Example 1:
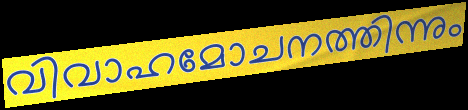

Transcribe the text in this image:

വിവാഹമോചനത്തിന്നും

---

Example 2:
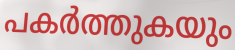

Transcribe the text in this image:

പകർത്തുകയും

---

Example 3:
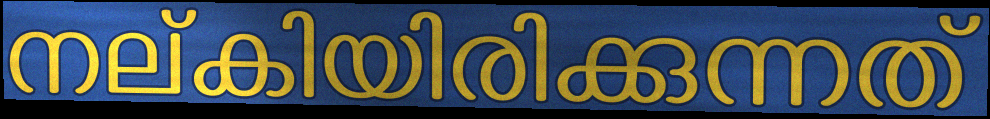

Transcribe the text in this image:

നല്‌കിയിരിക്കുന്നത്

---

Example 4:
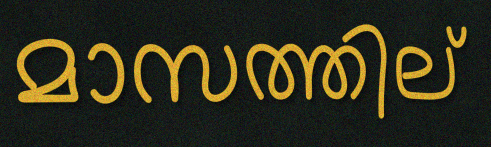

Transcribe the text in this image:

മാസത്തില്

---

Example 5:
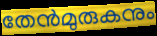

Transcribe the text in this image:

തേൻമുരുകനും